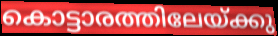
കൊട്ടാരത്തിലേയ്ക്കു